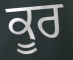
ਕੂਰ